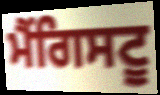
ਮੈਂਗਿਸਟੂ